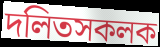
দলিতসকলক